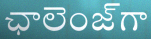
ఛాలెంజ్‌గా